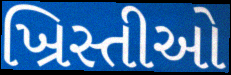
ખ્રિસ્તીઓ